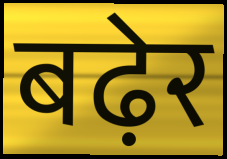
बढ़ेर